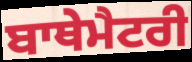
ਬਾਥੇਮੈਟਰੀ